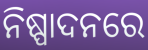
ନିଷ୍ପାଦନରେ